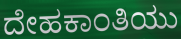
ದೇಹಕಾಂತಿಯು